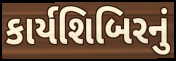
કાર્યશિબિરનું